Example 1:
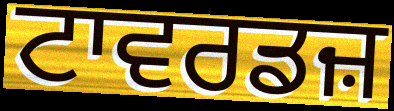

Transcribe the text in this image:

ਟਾਵਰਡਜ਼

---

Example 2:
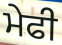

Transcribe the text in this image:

ਮੇਫੀ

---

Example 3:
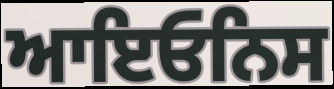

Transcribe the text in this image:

ਆਇਓਨਿਸ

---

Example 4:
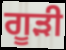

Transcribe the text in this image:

ਗੂੜੀ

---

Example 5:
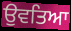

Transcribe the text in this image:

ਉਵਤਿਆ